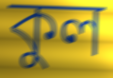
কুল